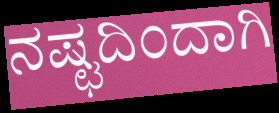
ನಷ್ಟದಿಂದಾಗಿ